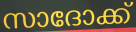
സാദോക്ക്